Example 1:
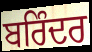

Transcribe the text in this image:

ਬਰਿੰਦਰ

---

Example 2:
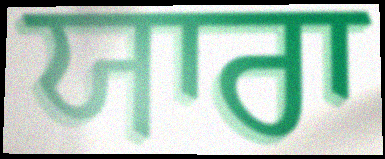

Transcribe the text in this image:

ਯਾਰਾ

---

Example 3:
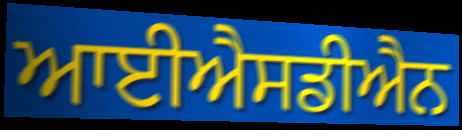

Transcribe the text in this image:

ਆਈਐਸਡੀਐਨ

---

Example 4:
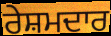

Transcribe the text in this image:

ਰੇਸ਼ਮਦਾਰ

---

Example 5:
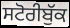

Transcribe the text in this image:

ਸਟੋਰੀਬੁੱਕ